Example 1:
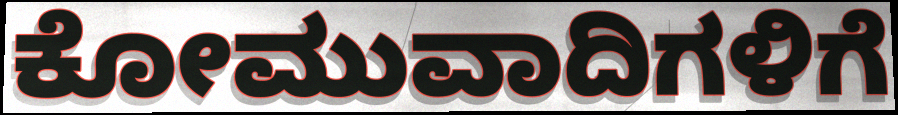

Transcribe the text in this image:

ಕೋಮುವಾದಿಗಳಿಗೆ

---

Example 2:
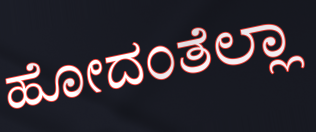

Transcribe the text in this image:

ಹೋದಂತೆಲ್ಲಾ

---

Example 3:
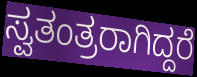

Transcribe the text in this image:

ಸ್ವತಂತ್ರರಾಗಿದ್ದರೆ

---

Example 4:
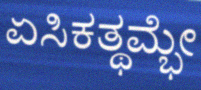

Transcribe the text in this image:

ಏಸಿಕತ್ಥಮ್ಭೇ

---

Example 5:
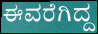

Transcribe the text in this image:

ಈವರೆಗಿದ್ದ